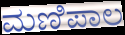
ಮಣಿಪಾಲ